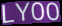
LYOO